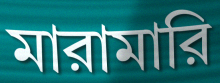
মারামারি